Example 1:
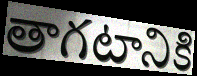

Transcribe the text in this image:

తాగటానికి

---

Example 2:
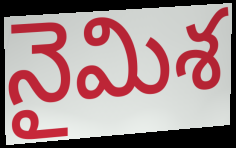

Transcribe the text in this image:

నైమిశ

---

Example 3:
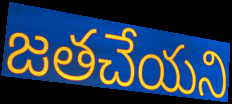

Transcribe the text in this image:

జతచేయని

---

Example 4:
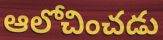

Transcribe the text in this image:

ఆలోచించడు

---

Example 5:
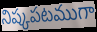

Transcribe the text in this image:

నిష్కపటముగా